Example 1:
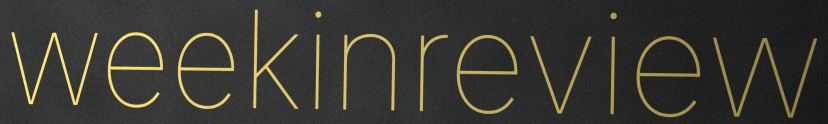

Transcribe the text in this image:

weekinreview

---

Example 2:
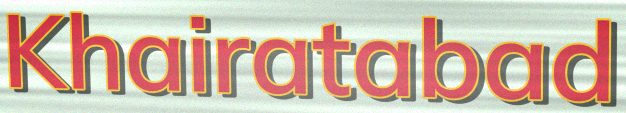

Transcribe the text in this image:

Khairatabad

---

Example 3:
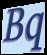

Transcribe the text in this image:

Bq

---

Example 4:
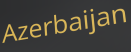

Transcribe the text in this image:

Azerbaijan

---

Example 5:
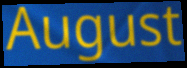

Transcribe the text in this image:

August